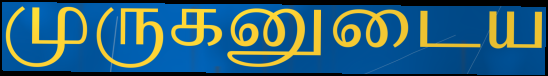
முருகனுடைய